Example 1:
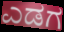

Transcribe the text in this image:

ಎಡಗ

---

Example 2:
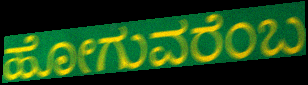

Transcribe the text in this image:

ಹೋಗುವರೆಂಬ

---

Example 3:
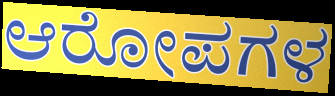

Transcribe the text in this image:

ಆರೋಪಗಳ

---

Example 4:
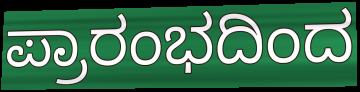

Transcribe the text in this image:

ಪ್ರಾರಂಭದಿಂದ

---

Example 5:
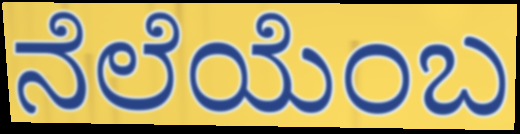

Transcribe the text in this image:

ನೆಲೆಯೆಂಬ